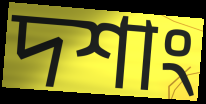
দশাং